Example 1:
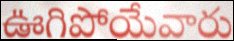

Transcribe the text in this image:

ఊగిపోయేవారు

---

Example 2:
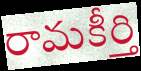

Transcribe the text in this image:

రామకీర్తి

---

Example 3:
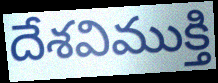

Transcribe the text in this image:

దేశవిముక్తి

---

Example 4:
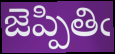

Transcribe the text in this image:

జెప్పితిఁ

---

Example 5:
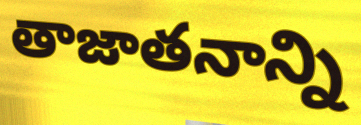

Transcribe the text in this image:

తాజాతనాన్ని